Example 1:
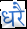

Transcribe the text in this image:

धरै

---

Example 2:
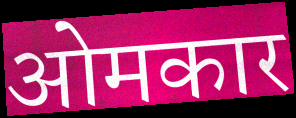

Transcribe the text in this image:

ओमकार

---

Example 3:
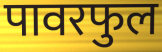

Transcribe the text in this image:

पावरफुल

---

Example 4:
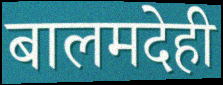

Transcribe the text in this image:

बालमदेही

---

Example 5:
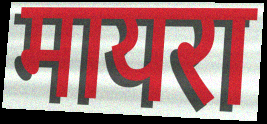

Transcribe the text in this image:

मायरा